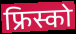
फ्रिस्को